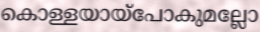
കൊള്ളയായ്പോകുമല്ലോ